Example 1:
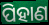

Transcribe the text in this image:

ପିହାଣ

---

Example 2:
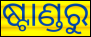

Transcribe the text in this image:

ଷ୍ଟାଣ୍ଡରୁ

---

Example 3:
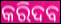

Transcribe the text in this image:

କରିଦବ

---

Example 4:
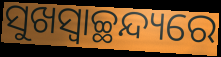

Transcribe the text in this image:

ସୁଖସ୍ଵାଚ୍ଛନ୍ଦ୍ୟରେ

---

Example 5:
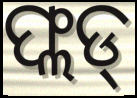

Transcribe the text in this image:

ଫ୍ଲଡ୍